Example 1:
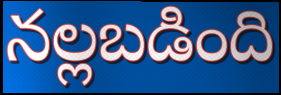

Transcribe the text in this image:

నల్లబడింది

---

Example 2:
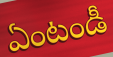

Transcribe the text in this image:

ఏంటండీ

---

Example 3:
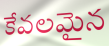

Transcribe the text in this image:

కేవలమైన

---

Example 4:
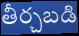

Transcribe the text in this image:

తీర్చబడి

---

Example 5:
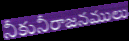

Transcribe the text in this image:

నీకునీరాజనములు